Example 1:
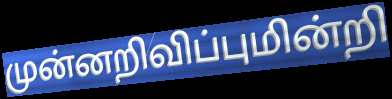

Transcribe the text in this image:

முன்னறிவிப்புமின்றி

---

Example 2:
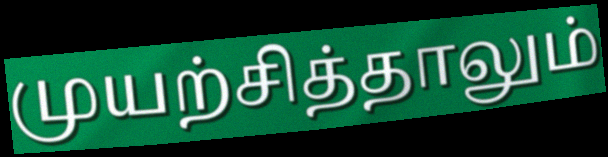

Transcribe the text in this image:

முயற்சித்தாலும்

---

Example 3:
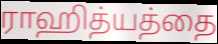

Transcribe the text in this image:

ராஹித்யத்தை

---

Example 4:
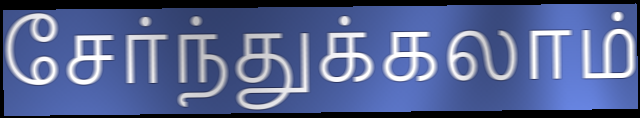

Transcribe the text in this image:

சேர்ந்துக்கலாம்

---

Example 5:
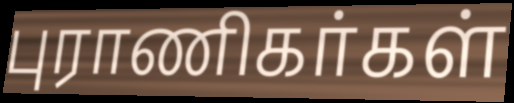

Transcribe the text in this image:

புராணிகர்கள்